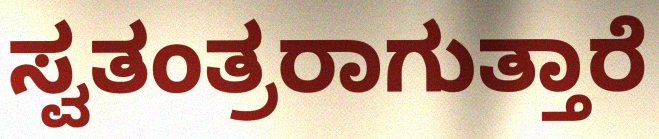
ಸ್ವತಂತ್ರರಾಗುತ್ತಾರೆ